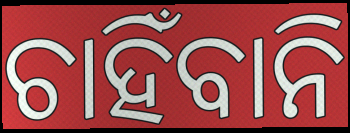
ଚାହିଁବାନି